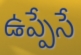
ఉప్పేసే